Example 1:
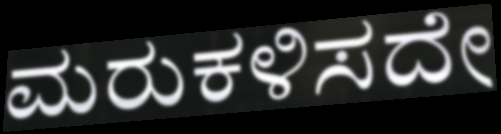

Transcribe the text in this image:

ಮರುಕಳಿಸದೇ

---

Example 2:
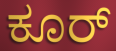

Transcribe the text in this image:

ಕೂರ್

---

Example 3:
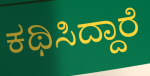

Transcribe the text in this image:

ಕಥಿಸಿದ್ದಾರೆ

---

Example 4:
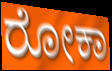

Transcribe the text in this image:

ರೋಕಾ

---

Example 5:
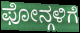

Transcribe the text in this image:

ಫೋನ್ಗಳಿಗೆ